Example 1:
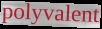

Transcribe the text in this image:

polyvalent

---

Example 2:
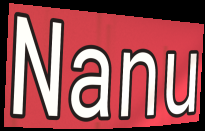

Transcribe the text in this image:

Nanu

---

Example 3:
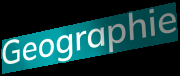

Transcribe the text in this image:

Geographie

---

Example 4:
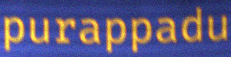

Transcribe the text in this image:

purappadu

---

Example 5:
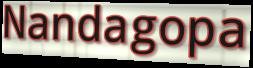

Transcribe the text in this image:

Nandagopa